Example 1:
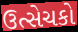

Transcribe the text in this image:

ઉત્સેચકો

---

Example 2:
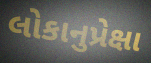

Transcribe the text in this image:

લોકાનુપ્રેક્ષા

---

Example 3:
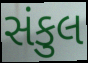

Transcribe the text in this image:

સંકુલ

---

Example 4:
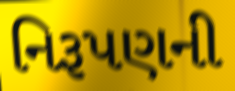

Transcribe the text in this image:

નિરૂપણની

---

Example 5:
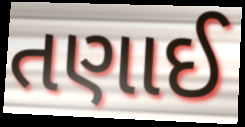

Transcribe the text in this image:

તણાઈ